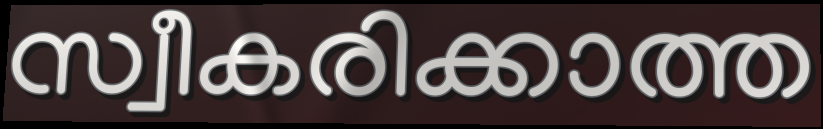
സ്വീകരിക്കാത്ത